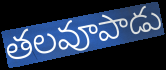
తలవూపాడు